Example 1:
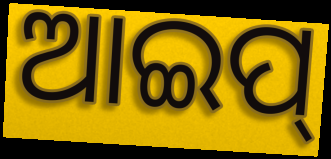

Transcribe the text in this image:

ଆଇପ୍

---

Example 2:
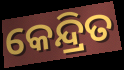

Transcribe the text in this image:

କେନ୍ଦ୍ରିତ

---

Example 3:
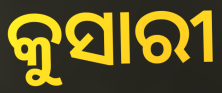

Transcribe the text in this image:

କୁସାରୀ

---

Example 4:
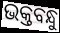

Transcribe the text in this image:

ଭକ୍ତବନ୍ଧୁ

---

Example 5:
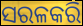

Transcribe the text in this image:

ସରଳକରି